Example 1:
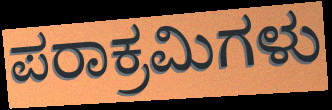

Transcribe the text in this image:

ಪರಾಕ್ರಮಿಗಳು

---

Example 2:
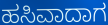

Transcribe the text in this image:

ಹಸಿವಾದಾಗ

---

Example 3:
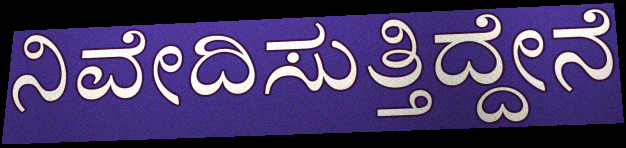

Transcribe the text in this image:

ನಿವೇದಿಸುತ್ತಿದ್ದೇನೆ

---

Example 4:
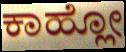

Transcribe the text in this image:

ಕಾಹ್ಲೋ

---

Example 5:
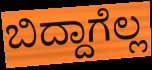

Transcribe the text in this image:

ಬಿದ್ದಾಗೆಲ್ಲ